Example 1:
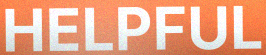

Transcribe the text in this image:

HELPFUL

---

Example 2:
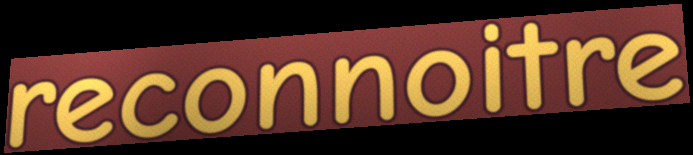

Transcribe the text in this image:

reconnoitre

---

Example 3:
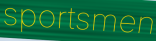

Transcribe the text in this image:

sportsmen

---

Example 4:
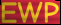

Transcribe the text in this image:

EWP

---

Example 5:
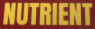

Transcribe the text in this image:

NUTRIENT